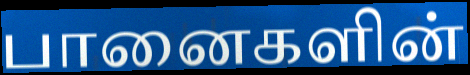
பானைகளின்